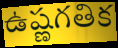
ఉష్ణగతిక